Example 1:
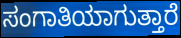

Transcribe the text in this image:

ಸಂಗಾತಿಯಾಗುತ್ತಾರೆ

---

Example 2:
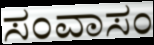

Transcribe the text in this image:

ಸಂವಾಸಂ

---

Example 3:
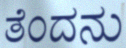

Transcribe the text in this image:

ತೆಂದನು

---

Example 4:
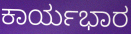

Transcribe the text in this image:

ಕಾರ್ಯಭಾರ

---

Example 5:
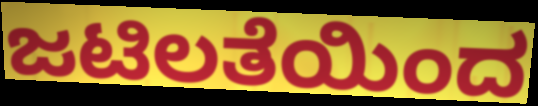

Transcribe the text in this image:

ಜಟಿಲತೆಯಿಂದ